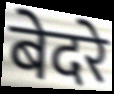
बेदरे